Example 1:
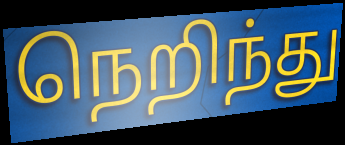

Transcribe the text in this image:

நெறிந்து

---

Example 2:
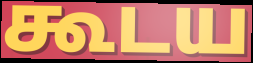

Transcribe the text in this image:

கூடய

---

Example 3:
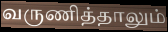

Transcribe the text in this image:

வருணித்தாலும்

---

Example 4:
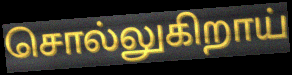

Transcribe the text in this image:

சொல்லுகிறாய்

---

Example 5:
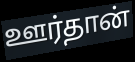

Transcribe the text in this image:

ஊர்தான்